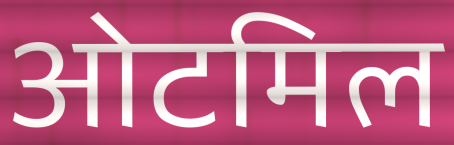
ओटमिल